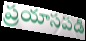
ప్రయాసపడి